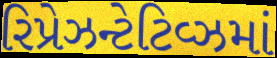
રિપ્રેઝન્ટેટિવ્ઝમાં